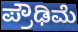
ಪ್ರೌಢಿಮೆ